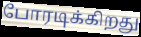
போரடிக்கிறது